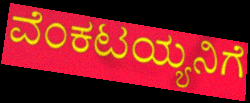
ವೆಂಕಟಯ್ಯನಿಗೆ